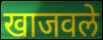
खाजवले